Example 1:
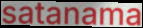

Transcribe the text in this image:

satanama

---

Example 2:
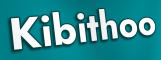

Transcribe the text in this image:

Kibithoo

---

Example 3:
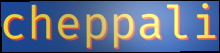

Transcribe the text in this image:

cheppali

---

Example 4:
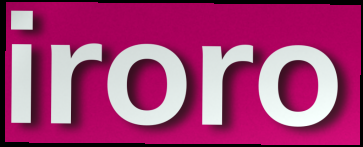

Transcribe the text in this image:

iroro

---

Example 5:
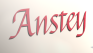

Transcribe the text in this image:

Anstey